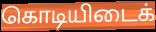
கொடியிடைக்